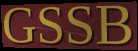
GSSB